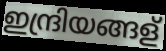
ഇന്ദ്രിയങ്ങള്